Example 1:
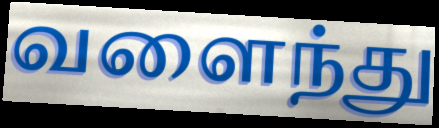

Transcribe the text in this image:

வளைந்து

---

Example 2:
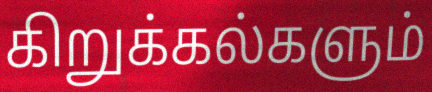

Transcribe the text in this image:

கிறுக்கல்களும்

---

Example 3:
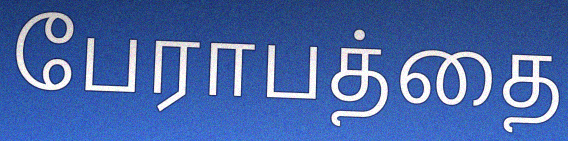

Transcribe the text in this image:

பேராபத்தை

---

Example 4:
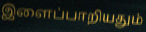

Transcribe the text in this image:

இளைப்பாறியதும்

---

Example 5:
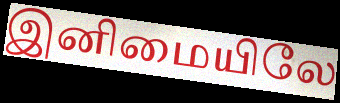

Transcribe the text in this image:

இனிமையிலே